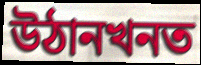
উঠানখনত